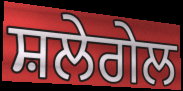
ਸ਼ਲੇਗੇਲ